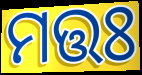
ମତ୍ତଃ